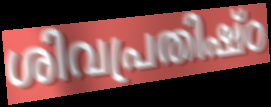
ശിവപ്രതിഷ്ഠ